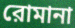
রোমানা